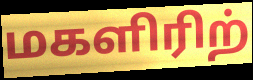
மகளிரிற்